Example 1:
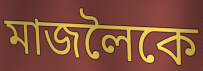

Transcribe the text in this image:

মাজলৈকে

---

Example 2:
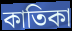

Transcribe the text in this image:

কাতিকা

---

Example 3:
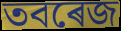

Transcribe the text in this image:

তবৰেজ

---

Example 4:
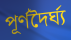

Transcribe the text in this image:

পূৰ্ণদৈৰ্ঘ্য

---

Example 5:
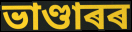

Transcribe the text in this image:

ভাণ্ডাৰৰ